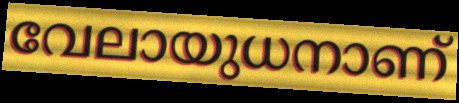
വേലായുധനാണ്